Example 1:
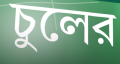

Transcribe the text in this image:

চুলের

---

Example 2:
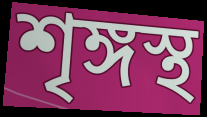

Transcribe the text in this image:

শৃঙ্গস্থ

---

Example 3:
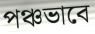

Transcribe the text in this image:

পঞ্চভাবে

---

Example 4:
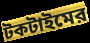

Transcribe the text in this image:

টকটাইমের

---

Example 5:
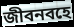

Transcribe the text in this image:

জীবনবহে